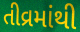
તીવ્રમાંથી